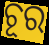
ଚୂର